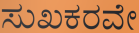
ಸುಖಕರವೇ